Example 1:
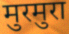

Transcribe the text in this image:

मुरमुरा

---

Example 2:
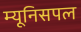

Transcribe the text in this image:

म्यूनिसपल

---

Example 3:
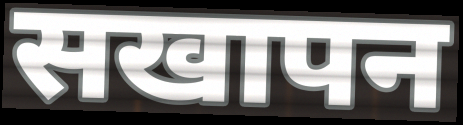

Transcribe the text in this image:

सखापन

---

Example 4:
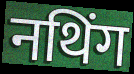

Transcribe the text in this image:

नथिंग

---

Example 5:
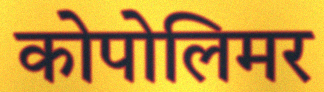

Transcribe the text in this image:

कोपोलिमर